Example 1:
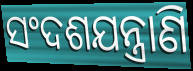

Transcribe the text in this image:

ସଂଦଶଯନ୍ତ୍ରାଣି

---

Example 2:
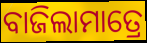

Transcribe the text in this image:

ବାଜିଲାମାତ୍ରେ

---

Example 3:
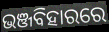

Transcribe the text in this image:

ଭଞ୍ଜବିହାରରେ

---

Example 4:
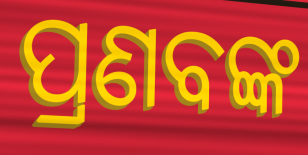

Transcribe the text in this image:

ପ୍ରଣବଙ୍କ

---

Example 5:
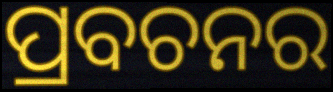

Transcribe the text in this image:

ପ୍ରବଚନର